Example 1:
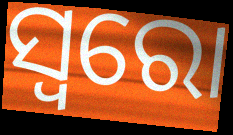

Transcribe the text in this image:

ସ୍ୱରୋ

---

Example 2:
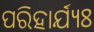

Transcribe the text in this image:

ପରିହାର୍ଯ୍ୟଃ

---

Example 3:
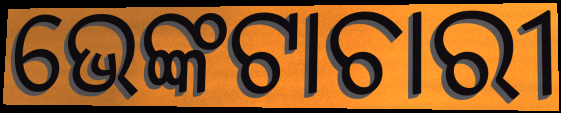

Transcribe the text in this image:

ଭେଙ୍କଟାଚାରୀ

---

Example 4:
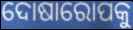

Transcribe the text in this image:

ଦୋଷାରୋପକୁ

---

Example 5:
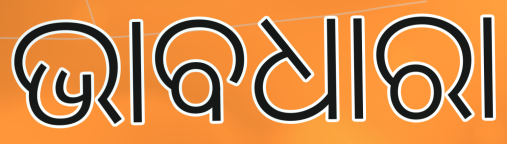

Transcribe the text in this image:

ଭାବଧାରା